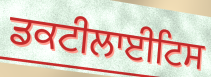
ਡਕਟੀਲਾਈਟਿਸ